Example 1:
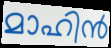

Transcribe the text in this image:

മാഹിൻ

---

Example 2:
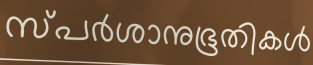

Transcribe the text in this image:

സ്പർശാനുഭൂതികൾ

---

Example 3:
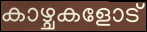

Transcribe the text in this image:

കാഴ്ചകളോട്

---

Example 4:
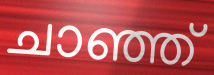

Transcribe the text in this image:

ചാഞ്ഞ്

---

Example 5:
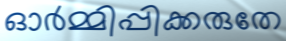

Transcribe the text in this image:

ഓർമ്മിപ്പിക്കരുതേ